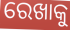
ରେଖାକୁ